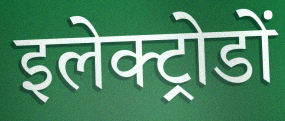
इलेक्ट्रोडों